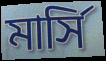
মার্সি